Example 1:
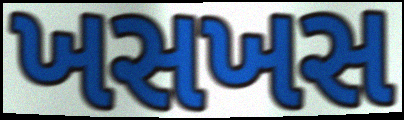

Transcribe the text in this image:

ખસખસ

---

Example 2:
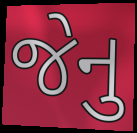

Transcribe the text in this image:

જેનુ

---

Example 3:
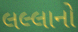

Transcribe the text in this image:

લલ્લાનો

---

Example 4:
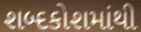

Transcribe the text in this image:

શબ્દકોશમાંથી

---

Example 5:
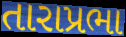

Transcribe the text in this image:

તારાપ્રભા